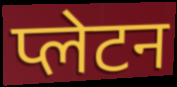
प्लेटन